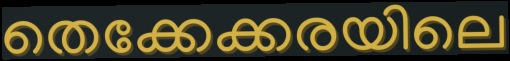
തെക്കേക്കരയിലെ